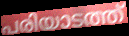
പരിയാടത്ത്